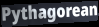
Pythagorean